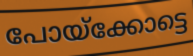
പോയ്ക്കോട്ടെ